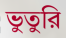
ভুতুরি